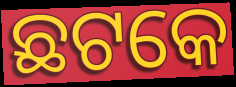
ଛଟକେ